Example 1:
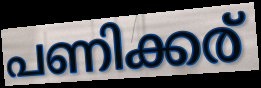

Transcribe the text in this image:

പണിക്കര്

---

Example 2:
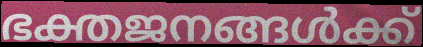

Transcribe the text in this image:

ഭക്തജനങ്ങൾക്ക്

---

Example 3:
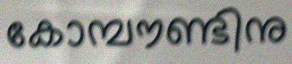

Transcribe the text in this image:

കോമ്പൗണ്ടിനു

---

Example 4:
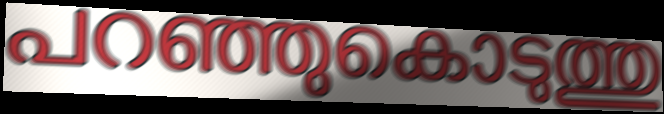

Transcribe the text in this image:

പറഞ്ഞുകൊടുത്തു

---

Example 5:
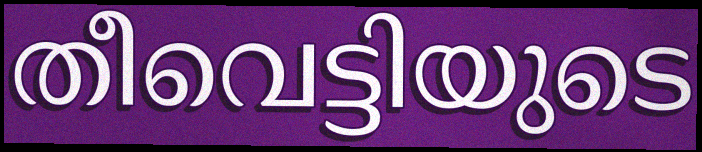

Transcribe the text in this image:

തീവെട്ടിയുടെ